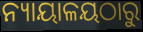
ନ୍ୟାୟାଳୟଠାରୁ